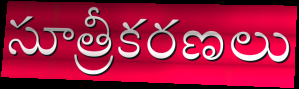
సూత్రీకరణలు